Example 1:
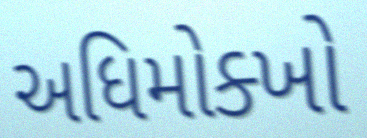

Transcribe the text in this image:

અધિમોક્ખો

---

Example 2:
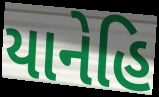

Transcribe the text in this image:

યાનેહિ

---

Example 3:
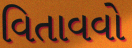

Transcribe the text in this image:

વિતાવવો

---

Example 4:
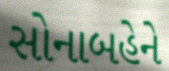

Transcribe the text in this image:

સોનાબહેને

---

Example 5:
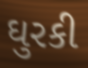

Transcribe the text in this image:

ઘુરકી